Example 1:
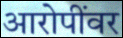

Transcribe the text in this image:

आरोपींवर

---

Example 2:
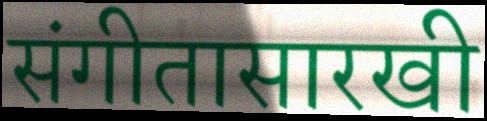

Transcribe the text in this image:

संगीतासारखी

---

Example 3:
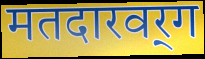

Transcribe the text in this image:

मतदारवर्ग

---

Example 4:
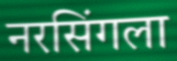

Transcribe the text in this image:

नरसिंगला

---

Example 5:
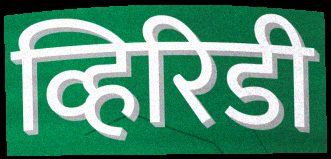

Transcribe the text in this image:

व्हिरिडी